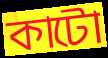
কাটো